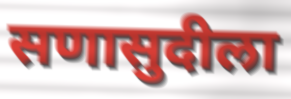
सणासुदीला